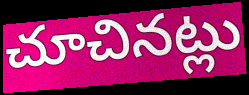
చూచినట్లు